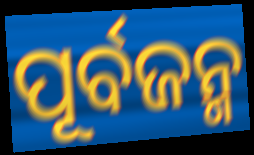
ପୂର୍ବଜନ୍ମ